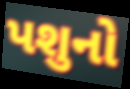
પશુનો